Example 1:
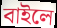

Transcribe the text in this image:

বাইলে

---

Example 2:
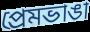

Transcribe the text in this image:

প্রেমভাঙা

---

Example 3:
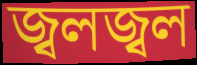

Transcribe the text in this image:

জ্বলজ্বল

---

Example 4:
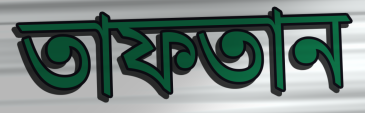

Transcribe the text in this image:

তাফতান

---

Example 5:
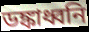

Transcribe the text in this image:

ডঙ্কাধ্বনি